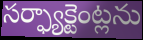
సర్ఫ్యాక్టెంట్లను